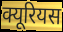
क्यूरियस